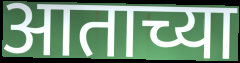
आताच्या